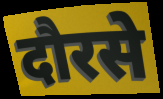
दौरसे